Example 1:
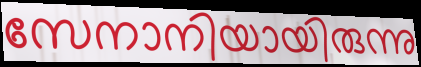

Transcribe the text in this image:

സേനാനിയായിരുന്നു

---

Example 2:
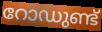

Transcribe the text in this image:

റോഡുണ്ട്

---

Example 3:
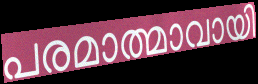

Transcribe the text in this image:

പരമാത്മാവായി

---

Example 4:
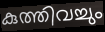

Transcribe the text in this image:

കുത്തിവച്ചും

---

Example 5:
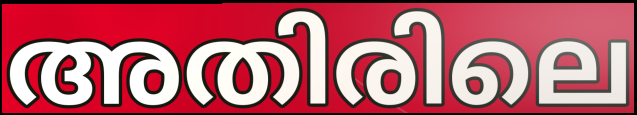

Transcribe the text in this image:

അതിരിലെ